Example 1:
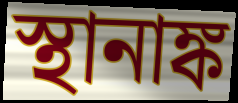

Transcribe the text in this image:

স্থানাঙ্ক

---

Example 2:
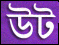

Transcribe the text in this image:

উট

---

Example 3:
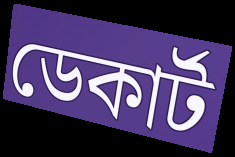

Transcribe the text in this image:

ডেকাৰ্ট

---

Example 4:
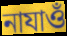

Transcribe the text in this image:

নাযাওঁ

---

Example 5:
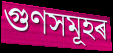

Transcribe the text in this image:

গুণসমূহৰ